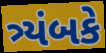
ત્ર્યંબકે